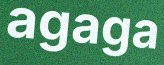
agaga